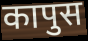
कापुस